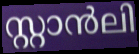
സ്റ്റാൻലി